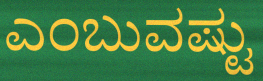
ಎಂಬುವಷ್ಟು